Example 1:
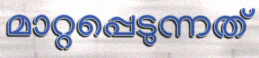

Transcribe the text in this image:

മാറ്റപ്പെടുന്നത്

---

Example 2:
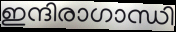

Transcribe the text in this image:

ഇന്ദിരാഗാന്ധി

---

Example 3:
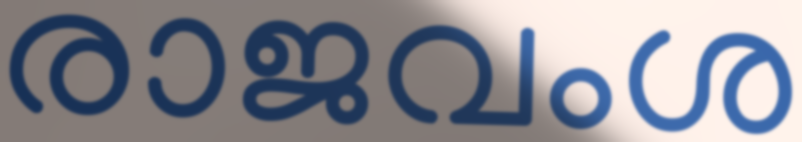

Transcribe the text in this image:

രാജവംശ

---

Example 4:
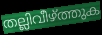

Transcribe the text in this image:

തല്ലിവീഴ്ത്തുക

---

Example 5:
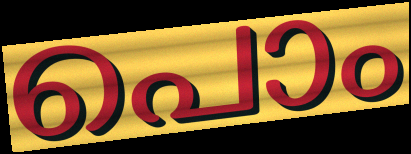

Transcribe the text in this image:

പൊം